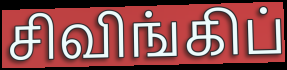
சிவிங்கிப்